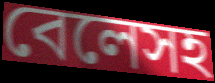
বেলেসহ